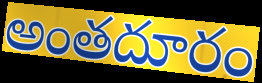
అంతదూరం